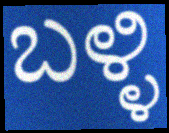
ಬಳ್ಳಿ